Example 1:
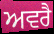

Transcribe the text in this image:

ਅਵਰੈ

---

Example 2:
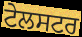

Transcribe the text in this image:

ਟੇਲਸਟਰ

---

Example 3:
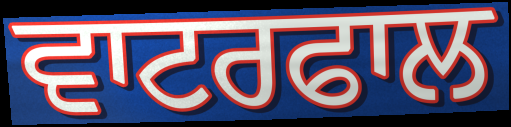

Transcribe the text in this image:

ਵਾਟਰਫਾਲ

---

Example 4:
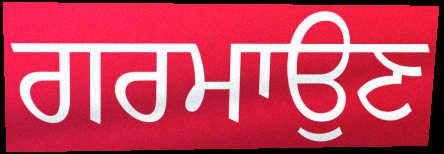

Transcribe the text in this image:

ਗਰਮਾਉਣ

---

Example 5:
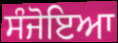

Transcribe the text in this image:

ਸੰਜੋਇਆ